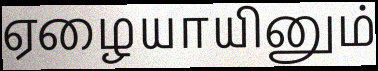
ஏழையாயினும்